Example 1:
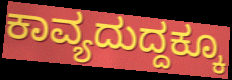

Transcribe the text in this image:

ಕಾವ್ಯದುದ್ದಕ್ಕೂ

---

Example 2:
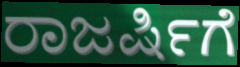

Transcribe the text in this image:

ರಾಜರ್ಷಿಗೆ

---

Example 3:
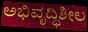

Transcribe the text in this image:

ಅಭಿವೃದ್ಧಿಶೀಲ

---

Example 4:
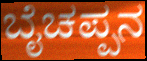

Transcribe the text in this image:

ಬೈಚಪ್ಪನ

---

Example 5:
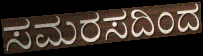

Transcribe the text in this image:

ಸಮರಸದಿಂದ